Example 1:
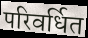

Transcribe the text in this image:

परिवर्धित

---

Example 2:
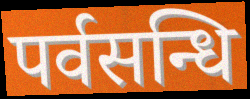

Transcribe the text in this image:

पर्वसन्धि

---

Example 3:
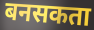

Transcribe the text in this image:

बनसकता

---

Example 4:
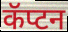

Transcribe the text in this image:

कॅप्टन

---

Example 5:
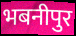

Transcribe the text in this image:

भबनीपुर